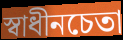
স্বাধীনচেতা